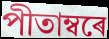
পীতাম্বৰে